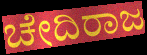
ಚೇದಿರಾಜ